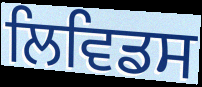
ਲਿਵਿਡਸ